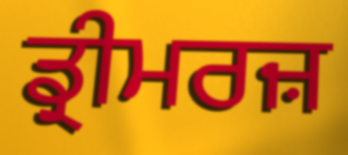
ਡ੍ਰੀਮਰਜ਼